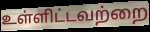
உள்ளிட்டவற்றை